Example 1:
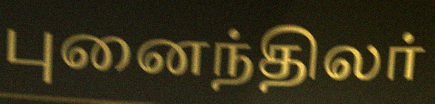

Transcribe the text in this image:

புனைந்திலர்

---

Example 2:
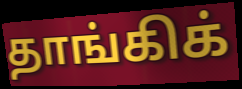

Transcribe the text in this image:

தாங்கிக்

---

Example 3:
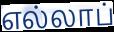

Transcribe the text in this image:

எல்லாப்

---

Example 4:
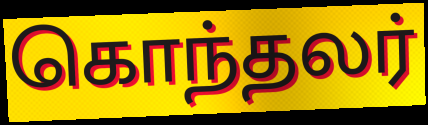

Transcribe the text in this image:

கொந்தலர்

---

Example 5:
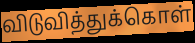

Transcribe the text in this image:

விடுவித்துக்கொள்